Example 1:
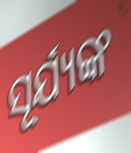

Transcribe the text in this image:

ସୂର୍ଯ୍ୟଙ୍କ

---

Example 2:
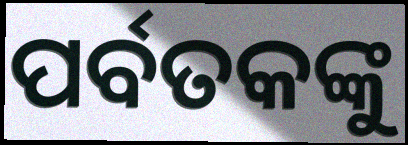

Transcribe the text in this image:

ପର୍ବତକଙ୍କୁ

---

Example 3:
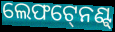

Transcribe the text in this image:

ଲେଫଟ୍‍ନେଣ୍ଟ୍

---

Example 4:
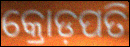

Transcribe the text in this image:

କ୍ରୋଡ଼ପତି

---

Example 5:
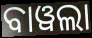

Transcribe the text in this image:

ବାୱଲା